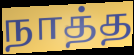
நாத்த